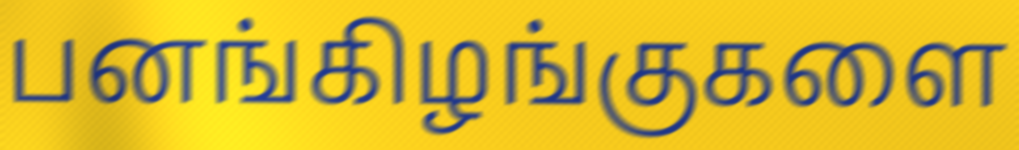
பனங்கிழங்குகளை